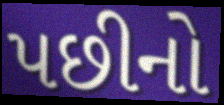
પછીનો